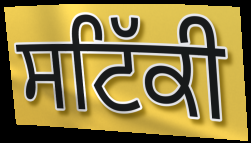
ਸਟਿੱਕੀ